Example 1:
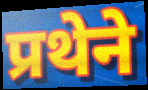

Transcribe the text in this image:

प्रथेने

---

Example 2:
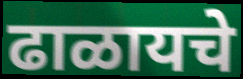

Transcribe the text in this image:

ढाळायचे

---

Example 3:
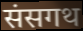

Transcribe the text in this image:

संसगथ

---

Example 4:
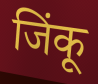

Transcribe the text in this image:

जिंकू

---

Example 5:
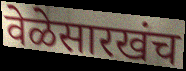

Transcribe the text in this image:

वेळेसारखंच